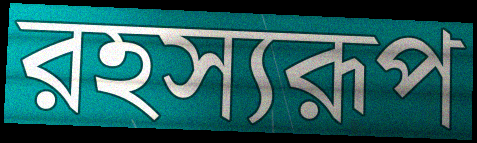
রহস্যরূপ